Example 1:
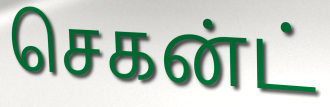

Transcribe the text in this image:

செகன்ட்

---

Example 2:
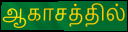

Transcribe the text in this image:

ஆகாசத்தில்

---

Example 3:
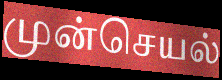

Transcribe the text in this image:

முன்செயல்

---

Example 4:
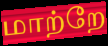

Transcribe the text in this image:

மாற்றே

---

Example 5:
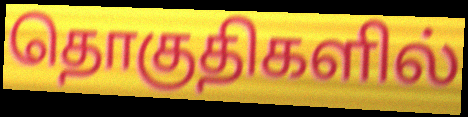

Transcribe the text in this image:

தொகுதிகளில்